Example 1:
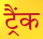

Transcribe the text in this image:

ट्रैंक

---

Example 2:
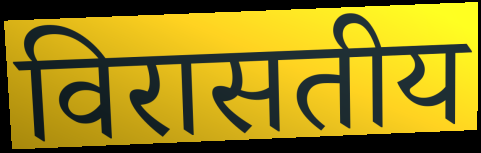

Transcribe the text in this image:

विरासतीय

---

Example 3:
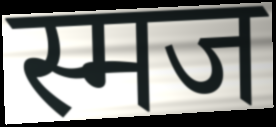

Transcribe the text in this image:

स्मज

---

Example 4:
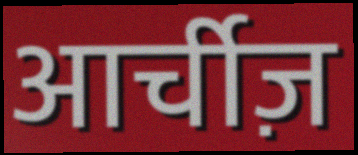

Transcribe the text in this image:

आर्चीज़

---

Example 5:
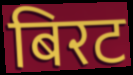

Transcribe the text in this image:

बिरट